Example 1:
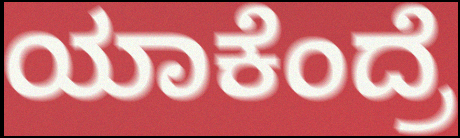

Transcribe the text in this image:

ಯಾಕೆಂದ್ರೆ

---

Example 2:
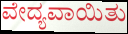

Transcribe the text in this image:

ವೇದ್ಯವಾಯಿತು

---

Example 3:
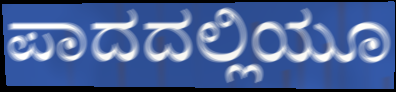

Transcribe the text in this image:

ಪಾದದಲ್ಲಿಯೂ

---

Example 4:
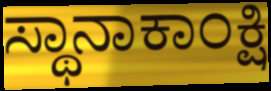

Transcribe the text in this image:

ಸ್ಥಾನಾಕಾಂಕ್ಷಿ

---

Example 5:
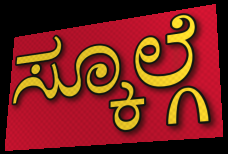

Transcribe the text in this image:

ಸ್ಕೂಲ್ಗೆ